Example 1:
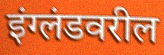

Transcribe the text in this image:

इंग्लंडवरील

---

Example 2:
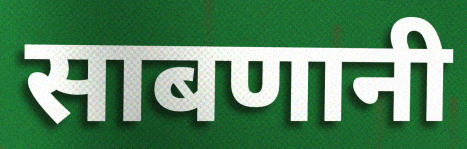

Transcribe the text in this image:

साबणानी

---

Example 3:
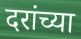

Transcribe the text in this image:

दरांच्या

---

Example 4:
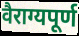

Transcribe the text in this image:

वैराग्यपूर्ण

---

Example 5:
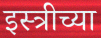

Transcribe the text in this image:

इस्त्रीच्या